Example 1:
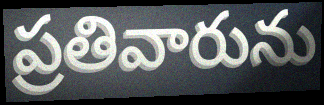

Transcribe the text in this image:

ప్రతివారును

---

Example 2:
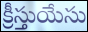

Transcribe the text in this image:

క్రీస్తుయేసు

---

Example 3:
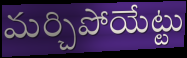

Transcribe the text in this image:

మర్చిపోయేట్టు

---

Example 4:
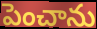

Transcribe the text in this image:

పెంచాను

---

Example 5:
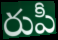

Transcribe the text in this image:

రుపీ